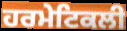
ਹਰਮੇਟਿਕਲੀ